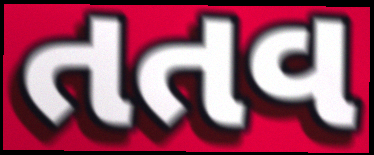
તતવ